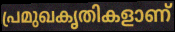
പ്രമുഖകൃതികളാണ്